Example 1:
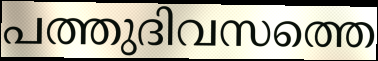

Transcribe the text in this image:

പത്തുദിവസത്തെ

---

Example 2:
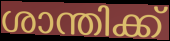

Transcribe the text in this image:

ശാന്തിക്ക്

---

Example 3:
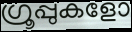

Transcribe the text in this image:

ഗ്രൂപ്പുകളോ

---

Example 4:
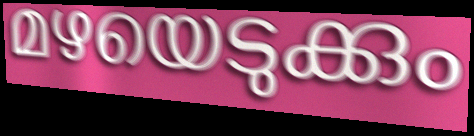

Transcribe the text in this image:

മഴയെടുക്കും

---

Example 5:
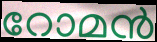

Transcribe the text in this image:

റോമൻ